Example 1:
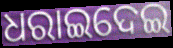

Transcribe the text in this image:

ଧରାଇଦେଇ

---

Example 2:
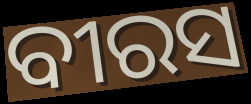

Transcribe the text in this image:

ବୀରସ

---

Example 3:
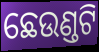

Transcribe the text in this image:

ଛେଉଣ୍ଡଟି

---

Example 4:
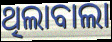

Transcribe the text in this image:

ଥିଲାବାଲା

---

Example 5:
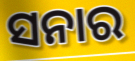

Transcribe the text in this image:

ସନାର